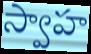
స్వాహ